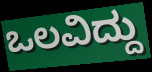
ಒಲವಿದ್ದು